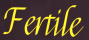
Fertile